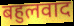
बहुलवाद